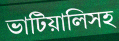
ভাটিয়ালিসহ